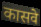
कासवे